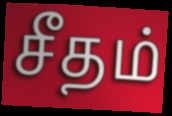
சீதம்